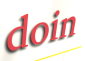
doin